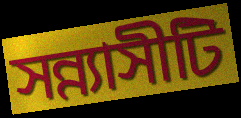
সন্ন্যাসীটি